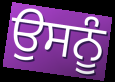
ਉਸਨੂੰ